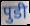
पुडी